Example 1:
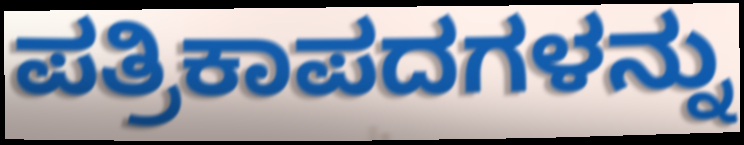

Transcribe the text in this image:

ಪತ್ರಿಕಾಪದಗಳನ್ನು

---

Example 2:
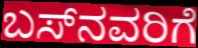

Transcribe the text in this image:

ಬಸ್‌ನವರಿಗೆ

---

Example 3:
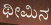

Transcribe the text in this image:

ಥೀಮಿನ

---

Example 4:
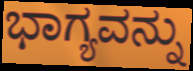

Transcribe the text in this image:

ಭಾಗ್ಯವನ್ನು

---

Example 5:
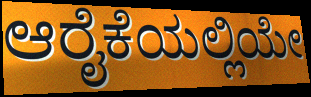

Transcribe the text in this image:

ಆರೈಕೆಯಲ್ಲಿಯೇ